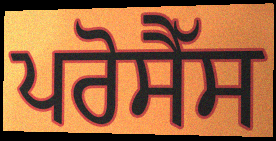
ਪਰੋਸੈੱਸ